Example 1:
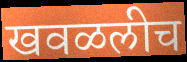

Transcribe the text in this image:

खवळलीच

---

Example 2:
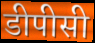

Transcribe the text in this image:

डीपीसी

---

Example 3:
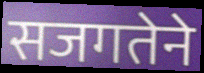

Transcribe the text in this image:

सजगतेने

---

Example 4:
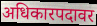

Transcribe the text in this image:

अधिकारपदावर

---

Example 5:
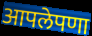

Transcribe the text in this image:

आपलेपणा